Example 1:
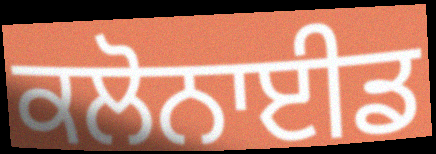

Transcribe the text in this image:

ਕਲੋਨਾਈਡ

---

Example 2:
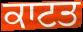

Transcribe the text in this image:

ਕਾਟਤ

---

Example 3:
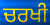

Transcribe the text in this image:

ਚਰਖੀ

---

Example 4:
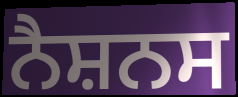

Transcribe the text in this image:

ਨੈਸ਼ਨਸ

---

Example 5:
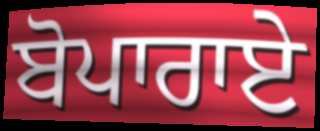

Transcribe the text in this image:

ਬੋਪਾਰਾਏ